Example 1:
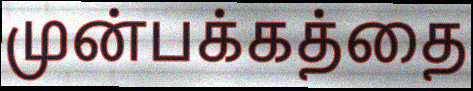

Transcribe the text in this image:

முன்பக்கத்தை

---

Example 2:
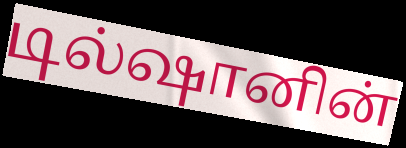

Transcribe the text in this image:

டில்ஷானின்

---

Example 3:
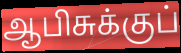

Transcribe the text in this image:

ஆபிசுக்குப்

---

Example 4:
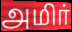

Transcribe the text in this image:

அமிர்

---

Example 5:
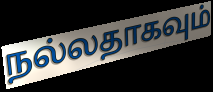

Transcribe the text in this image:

நல்லதாகவும்